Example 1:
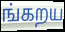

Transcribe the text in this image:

ங்கறய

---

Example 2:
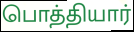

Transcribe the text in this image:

பொத்தியார்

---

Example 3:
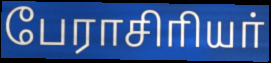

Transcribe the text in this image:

பேராசிரியர்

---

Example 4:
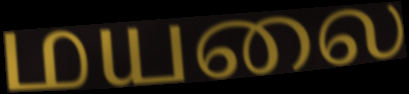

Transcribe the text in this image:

மயலை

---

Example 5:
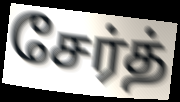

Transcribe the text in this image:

சேர்த்